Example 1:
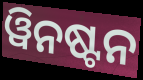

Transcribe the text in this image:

ୱିନଷ୍ଟନ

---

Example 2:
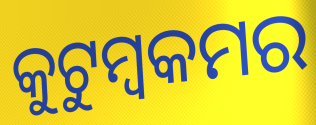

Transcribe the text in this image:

କୁଟୁମ୍ବକମର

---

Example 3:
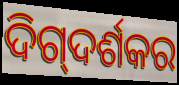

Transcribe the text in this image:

ଦିଗ୍‍ଦର୍ଶକର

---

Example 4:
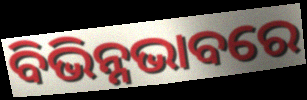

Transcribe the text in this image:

ବିଭିନ୍ନଭାବରେ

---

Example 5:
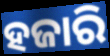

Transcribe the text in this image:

ହଜାରି